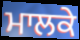
ਮਾਲਕੇ